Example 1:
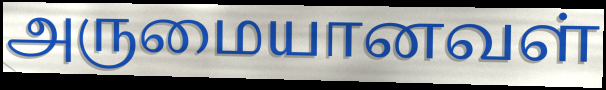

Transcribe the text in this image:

அருமையானவள்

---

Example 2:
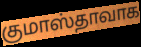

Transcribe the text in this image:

குமாஸ்தாவாக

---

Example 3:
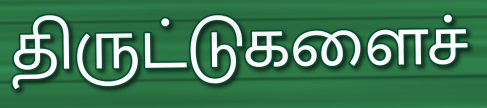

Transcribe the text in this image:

திருட்டுகளைச்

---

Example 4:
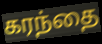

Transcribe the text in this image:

கரந்தை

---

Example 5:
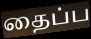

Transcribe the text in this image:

தைப்ப